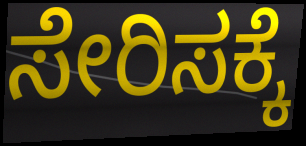
ಸೇರಿಸಕ್ಕೆ